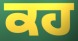
ਕਹ